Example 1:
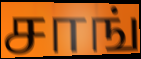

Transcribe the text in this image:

சாங்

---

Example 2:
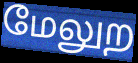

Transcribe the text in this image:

மேலுற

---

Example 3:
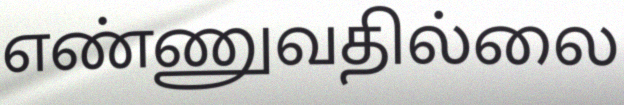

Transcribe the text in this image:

எண்ணுவதில்லை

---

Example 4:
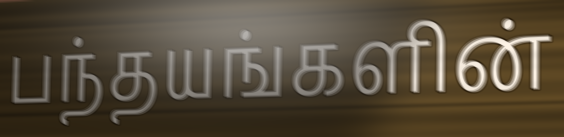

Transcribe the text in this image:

பந்தயங்களின்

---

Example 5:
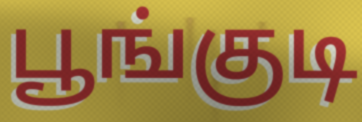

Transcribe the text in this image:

பூங்குடி